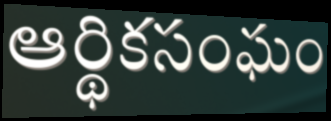
ఆర్థికసంఘం